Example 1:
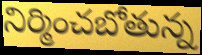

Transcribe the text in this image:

నిర్మించబోతున్న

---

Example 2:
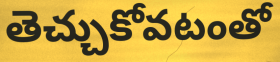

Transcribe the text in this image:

తెచ్చుకోవటంతో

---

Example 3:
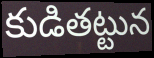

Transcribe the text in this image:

కుడితట్టున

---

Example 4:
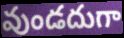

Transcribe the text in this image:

వుండదుగా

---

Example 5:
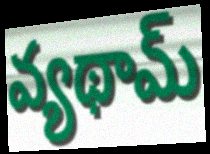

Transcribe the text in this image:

వ్యథామ్